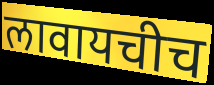
लावायचीच